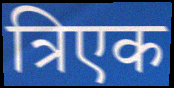
त्रिएक